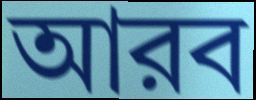
আরব